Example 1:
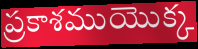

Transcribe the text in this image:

ప్రకాశముయొక్క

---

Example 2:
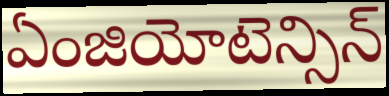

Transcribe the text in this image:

ఏంజియోటెన్సిన్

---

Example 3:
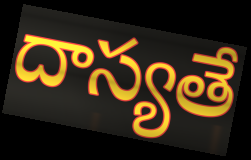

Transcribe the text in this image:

దాస్యతే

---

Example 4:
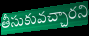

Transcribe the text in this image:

తీసుకువచ్చారని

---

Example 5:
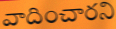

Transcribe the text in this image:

వాదించారని